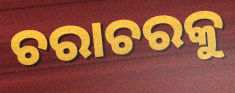
ଚରାଚରକୁ